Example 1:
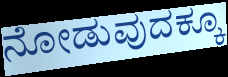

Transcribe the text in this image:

ನೋಡುವುದಕ್ಕೂ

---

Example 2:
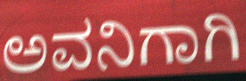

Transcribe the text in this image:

ಅವನಿಗಾಗಿ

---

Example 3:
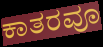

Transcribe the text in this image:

ಕಾತರವೂ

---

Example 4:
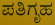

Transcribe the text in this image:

ಪತಿಗೃಹ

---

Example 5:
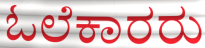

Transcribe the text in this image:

ಓಲೆಕಾರರು